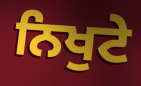
ਨਿਖੁਟੇ